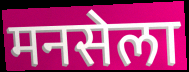
मनसेला